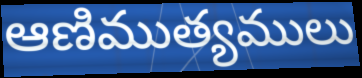
ఆణిముత్యములు